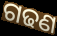
ଗଢଣ